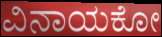
ವಿನಾಯಕೋ